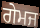
ਗੇਮਜ